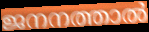
ജനനത്താൽ